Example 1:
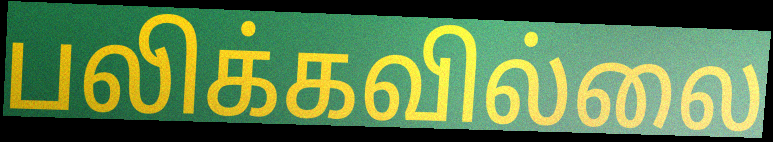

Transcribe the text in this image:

பலிக்கவில்லை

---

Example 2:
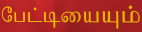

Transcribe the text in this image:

பேட்டியையும்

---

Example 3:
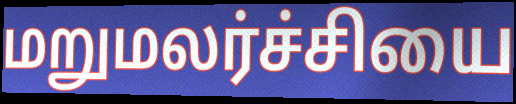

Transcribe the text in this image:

மறுமலர்ச்சியை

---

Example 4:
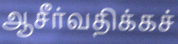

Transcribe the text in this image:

ஆசீர்வதிக்கச்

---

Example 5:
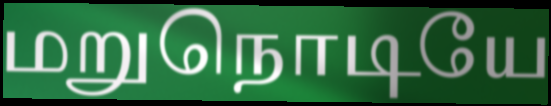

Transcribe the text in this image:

மறுநொடியே